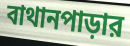
বাথানপাড়ার